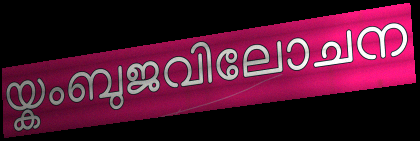
യ്കംബുജവിലോചന